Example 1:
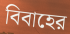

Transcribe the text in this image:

বিবাহের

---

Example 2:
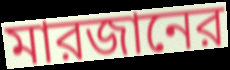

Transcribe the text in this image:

মারজানের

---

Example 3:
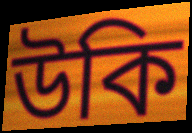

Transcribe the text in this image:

উকি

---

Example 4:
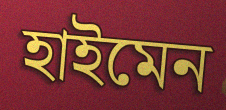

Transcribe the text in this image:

হাইমেন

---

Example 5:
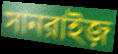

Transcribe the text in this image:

সানরাইজ়